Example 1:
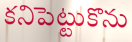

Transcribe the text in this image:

కనిపెట్టుకొను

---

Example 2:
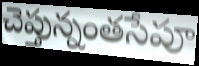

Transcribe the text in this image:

చెప్తున్నంతసేపూ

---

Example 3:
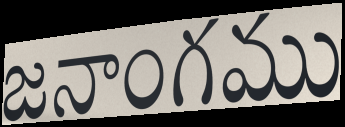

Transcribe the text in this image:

జనాంగము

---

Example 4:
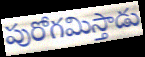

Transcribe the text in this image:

పురోగమిస్తాడు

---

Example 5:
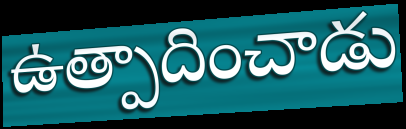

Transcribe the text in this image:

ఉత్పాదించాడు